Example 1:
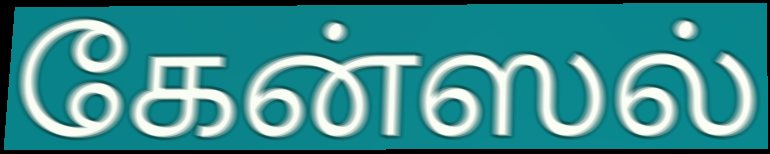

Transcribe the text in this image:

கேன்ஸல்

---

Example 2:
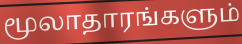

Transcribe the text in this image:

மூலாதாரங்களும்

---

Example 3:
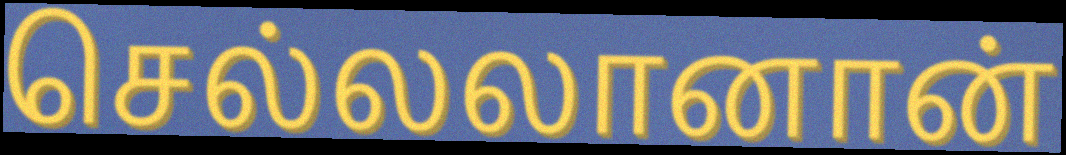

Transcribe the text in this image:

செல்லலானான்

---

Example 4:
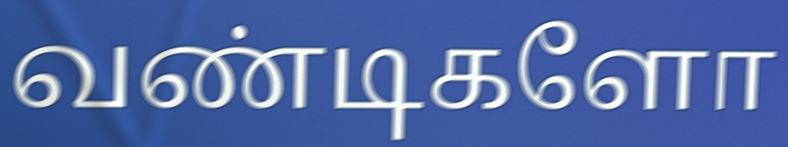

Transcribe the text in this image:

வண்டிகளோ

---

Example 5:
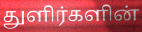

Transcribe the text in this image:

துளிர்களின்